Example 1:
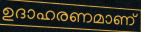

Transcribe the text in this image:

ഉദാഹരണമാണ്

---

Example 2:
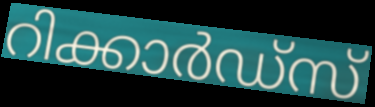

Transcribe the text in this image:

റിക്കാർഡ്സ്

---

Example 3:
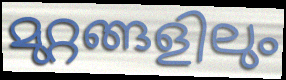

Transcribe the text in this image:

മുറ്റങ്ങളിലും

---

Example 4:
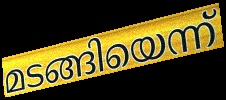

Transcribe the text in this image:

മടങ്ങിയെന്ന്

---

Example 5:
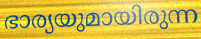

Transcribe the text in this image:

ഭാര്യയുമായിരുന്ന